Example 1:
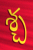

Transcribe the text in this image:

శ్చ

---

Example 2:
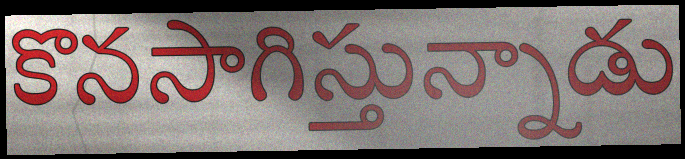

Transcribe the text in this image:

కొనసాగిస్తున్నాడు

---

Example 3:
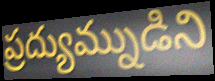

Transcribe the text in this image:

ప్రద్యుమ్నుడిని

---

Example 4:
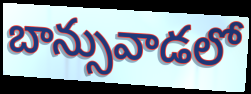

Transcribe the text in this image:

బాన్సువాడలో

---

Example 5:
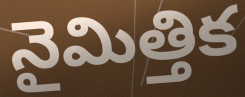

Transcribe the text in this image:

నైమిత్తిక